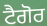
ਟੈਗੋਰ